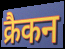
क्रैकन